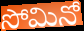
సోమినో